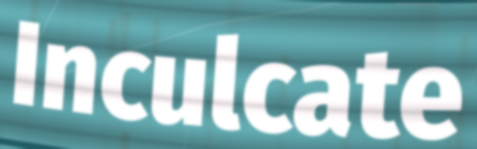
Inculcate